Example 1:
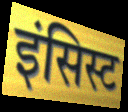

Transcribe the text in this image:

इंसिस्ट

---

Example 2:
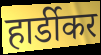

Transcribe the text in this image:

हार्डीकर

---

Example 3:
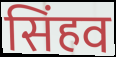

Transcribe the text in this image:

सिंहव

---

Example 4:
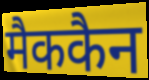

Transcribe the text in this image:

मैककैन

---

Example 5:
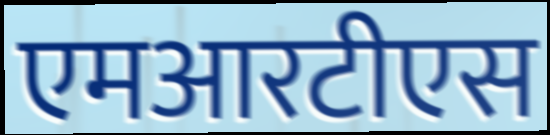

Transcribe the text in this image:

एमआरटीएस